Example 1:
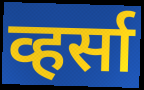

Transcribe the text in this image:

व्हर्सा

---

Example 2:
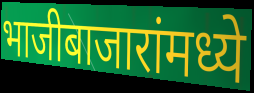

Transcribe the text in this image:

भाजीबाजारांमध्ये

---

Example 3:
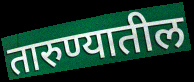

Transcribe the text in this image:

तारुण्यातील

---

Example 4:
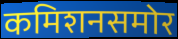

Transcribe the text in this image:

कमिशनसमोर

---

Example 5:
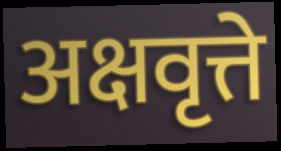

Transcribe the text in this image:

अक्षवृत्ते